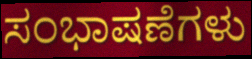
ಸಂಭಾಷಣೆಗಳು